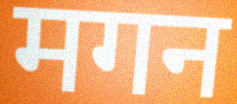
मगन